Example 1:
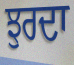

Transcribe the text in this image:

ਝੁਰਦਾ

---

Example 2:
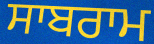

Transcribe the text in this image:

ਸਾਬਰਾਮ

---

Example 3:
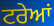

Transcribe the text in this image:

ਟਰੇਆਂ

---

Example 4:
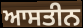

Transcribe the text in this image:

ਆਸਤੀਨ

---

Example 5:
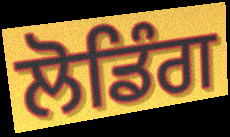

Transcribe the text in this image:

ਲੋਡਿੰਗ